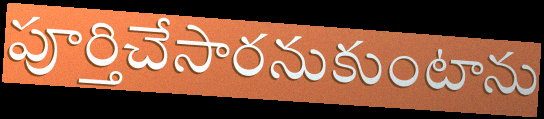
పూర్తిచేసారనుకుంటాను